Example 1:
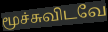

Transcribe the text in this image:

மூச்சுவிடவே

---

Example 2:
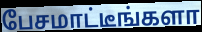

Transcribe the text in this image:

பேசமாட்டீங்களா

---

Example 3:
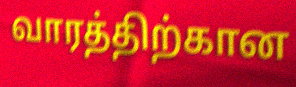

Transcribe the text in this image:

வாரத்திற்கான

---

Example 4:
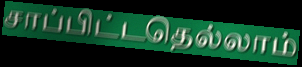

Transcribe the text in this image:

சாப்பிட்டதெல்லாம்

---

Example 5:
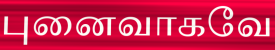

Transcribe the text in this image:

புனைவாகவே